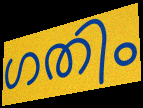
ഗതിം